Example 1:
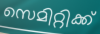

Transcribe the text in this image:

സെമിറ്റിക്ക്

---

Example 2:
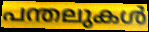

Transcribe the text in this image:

പന്തലുകൾ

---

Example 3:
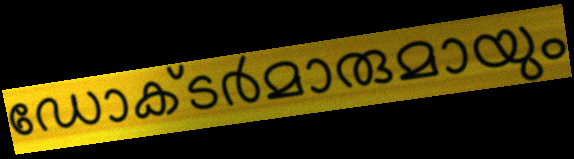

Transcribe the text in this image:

ഡോക്ടർമാരുമായും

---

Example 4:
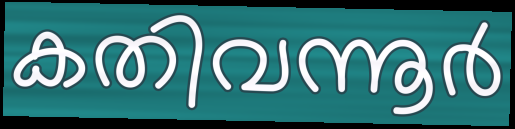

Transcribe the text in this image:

കതിവന്നൂർ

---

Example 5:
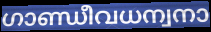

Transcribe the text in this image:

ഗാണ്ഡീവധന്വനാ